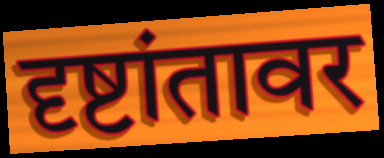
दृष्टांतावर